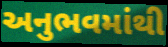
અનુભવમાંથી